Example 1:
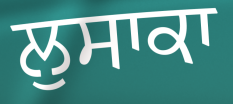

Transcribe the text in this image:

ਲੁਸਾਕਾ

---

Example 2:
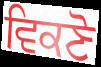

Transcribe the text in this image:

ਵਿਕਣੋ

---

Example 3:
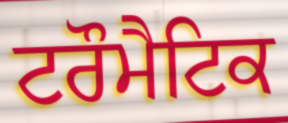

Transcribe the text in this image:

ਟਰੌਮੈਟਿਕ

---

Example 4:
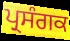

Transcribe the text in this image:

ਪ੍ਰਸੰਗਕ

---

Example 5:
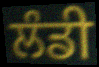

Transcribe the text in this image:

ਲੰਡੀ